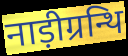
नाड़ीग्रन्थि